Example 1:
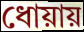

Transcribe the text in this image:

ধোয়ায়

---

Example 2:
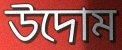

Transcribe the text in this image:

উদোম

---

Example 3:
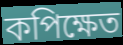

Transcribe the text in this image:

কপিক্ষেত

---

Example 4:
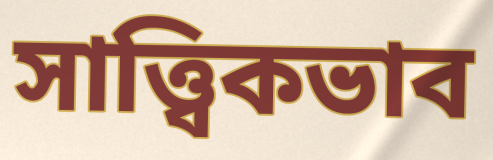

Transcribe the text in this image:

সাত্ত্বিকভাব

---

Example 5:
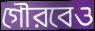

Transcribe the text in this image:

গৌরবেও